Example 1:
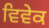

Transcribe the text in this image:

ਵਿਵੇਕ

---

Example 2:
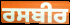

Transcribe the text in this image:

ਰਸਬੀਰ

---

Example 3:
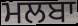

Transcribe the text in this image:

ਮਲਬਾ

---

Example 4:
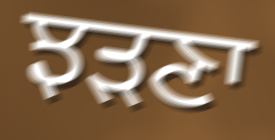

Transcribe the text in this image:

ਝੜਣਾ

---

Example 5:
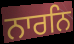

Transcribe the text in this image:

ਨਾਰਨਿ